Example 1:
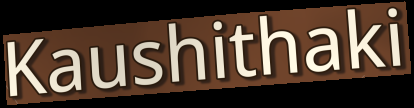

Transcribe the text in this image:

Kaushithaki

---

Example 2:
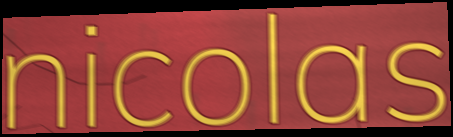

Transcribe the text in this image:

nicolas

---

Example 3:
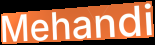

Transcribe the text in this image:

Mehandi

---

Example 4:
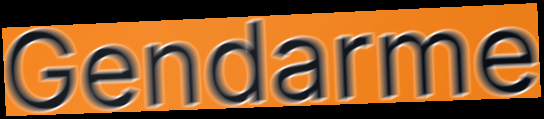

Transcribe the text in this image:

Gendarme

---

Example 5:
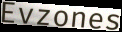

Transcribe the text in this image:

Evzones